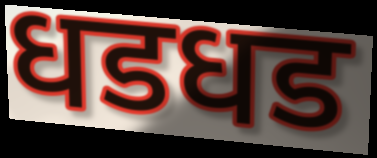
धडधड